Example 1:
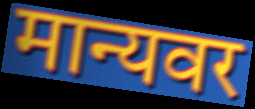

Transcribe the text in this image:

मान्यवर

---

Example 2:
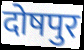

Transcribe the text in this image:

दोषपुर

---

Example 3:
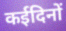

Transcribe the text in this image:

कईदिनों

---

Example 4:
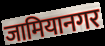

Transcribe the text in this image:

जामियानगर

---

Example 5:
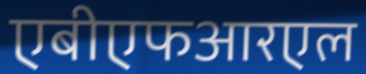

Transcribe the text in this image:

एबीएफआरएल